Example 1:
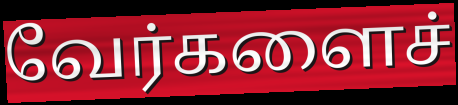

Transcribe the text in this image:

வேர்களைச்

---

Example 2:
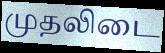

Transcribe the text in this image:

முதலிடை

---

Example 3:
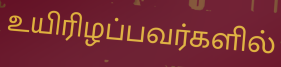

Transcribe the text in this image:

உயிரிழப்பவர்களில்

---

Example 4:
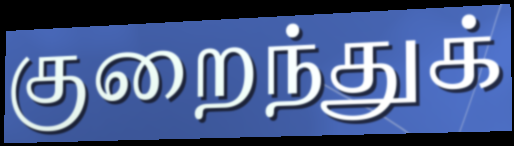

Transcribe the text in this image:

குறைந்துக்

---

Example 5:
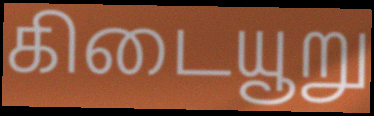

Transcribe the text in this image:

கிடையூறு